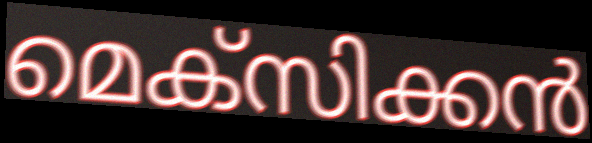
മെക്സിക്കൻ